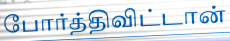
போர்த்திவிட்டான்